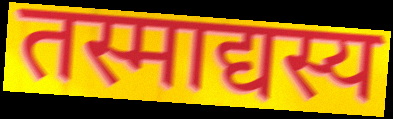
तस्माद्यस्य